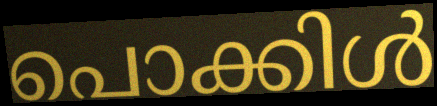
പൊക്കിൾ